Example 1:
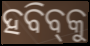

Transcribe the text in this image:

ହବିବ୍‌କୁ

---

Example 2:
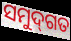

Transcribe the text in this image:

ସମୁଦ୍‌ଗତ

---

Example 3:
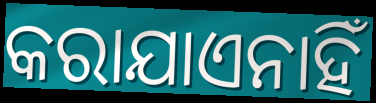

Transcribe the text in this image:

କରାଯାଏନାହିଁ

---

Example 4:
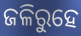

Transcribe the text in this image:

ଜଳିରୁହେ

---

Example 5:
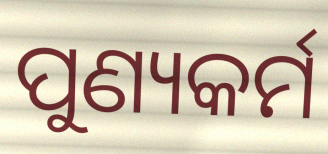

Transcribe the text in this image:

ପୁଣ୍ୟକର୍ମ